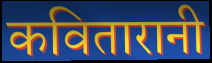
कवितारानी